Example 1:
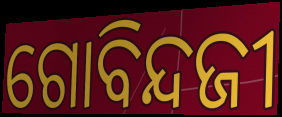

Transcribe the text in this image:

ଗୋବିନ୍ଦଜୀ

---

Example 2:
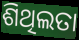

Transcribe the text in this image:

ଶିଥିଲତା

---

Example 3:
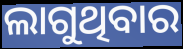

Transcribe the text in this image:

ଲାଗୁଥିବାର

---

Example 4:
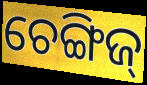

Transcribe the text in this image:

ଚେଙ୍ଗିଜ୍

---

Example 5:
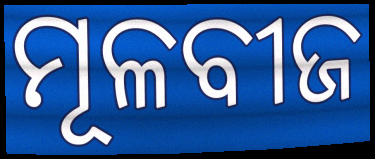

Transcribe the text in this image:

ମୂଳବୀଜ